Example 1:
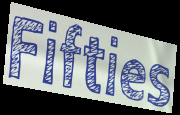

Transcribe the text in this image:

Fifties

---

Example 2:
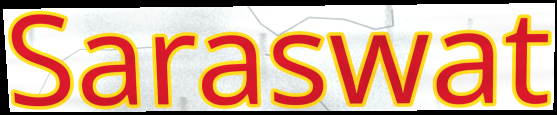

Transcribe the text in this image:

Saraswat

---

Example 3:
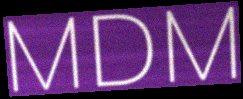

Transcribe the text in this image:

MDM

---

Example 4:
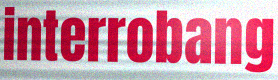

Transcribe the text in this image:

interrobang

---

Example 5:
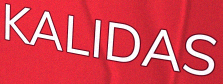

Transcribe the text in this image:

KALIDAS